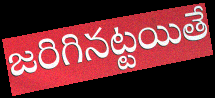
జరిగినట్టయితే